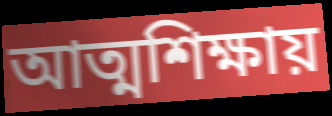
আত্মশিক্ষায়